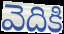
వెదికి